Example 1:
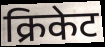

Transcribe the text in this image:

क्रिकेट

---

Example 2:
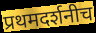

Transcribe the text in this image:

प्रथमदर्शनीच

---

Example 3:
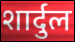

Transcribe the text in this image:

शार्दुल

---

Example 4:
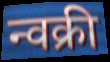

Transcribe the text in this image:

न्वक्री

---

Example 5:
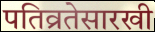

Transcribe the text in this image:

पतिव्रतेसारखी